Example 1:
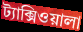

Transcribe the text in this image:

ট্যাক্সিওয়ালা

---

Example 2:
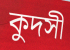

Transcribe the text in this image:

কুদসী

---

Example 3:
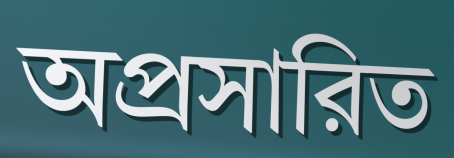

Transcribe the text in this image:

অপ্রসারিত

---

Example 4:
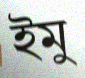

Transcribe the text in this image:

ইমু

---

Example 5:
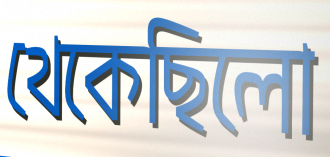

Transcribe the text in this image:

থেকেছিলো